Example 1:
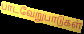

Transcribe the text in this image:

பாடவேறுபாடுகள்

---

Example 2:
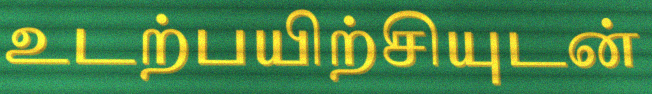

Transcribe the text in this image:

உடற்பயிற்சியுடன்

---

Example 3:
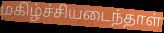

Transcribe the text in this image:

மகிழ்ச்சியடைந்தாள்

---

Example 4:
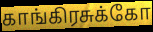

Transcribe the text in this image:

காங்கிரசுக்கோ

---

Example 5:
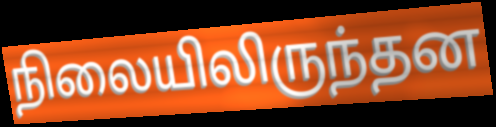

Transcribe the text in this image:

நிலையிலிருந்தன